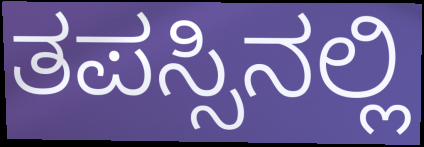
ತಪಸ್ಸಿನಲ್ಲಿ